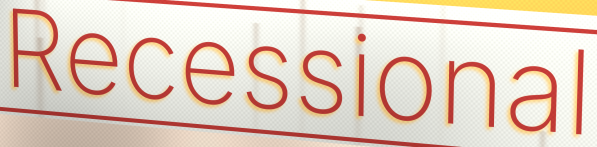
Recessional